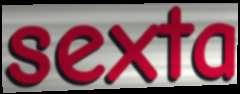
sexta